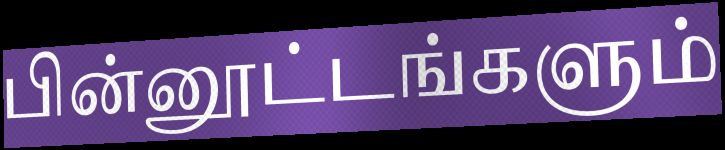
பின்னூட்டங்களும்